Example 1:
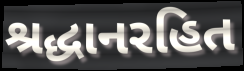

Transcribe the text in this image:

શ્રદ્ધાનરહિત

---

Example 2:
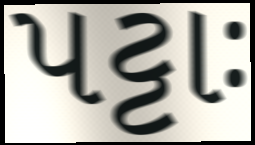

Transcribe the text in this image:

પટ્ટાઃ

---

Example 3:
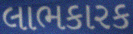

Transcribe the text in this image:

લાભકારક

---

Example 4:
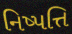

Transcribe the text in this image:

નિષ્પત્તિ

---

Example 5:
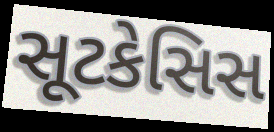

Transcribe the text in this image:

સૂટકેસિસ